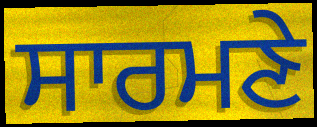
ਸਾਰਮਣੇ